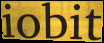
iobit